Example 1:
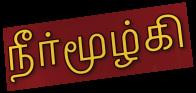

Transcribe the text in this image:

நீர்மூழ்கி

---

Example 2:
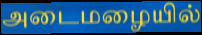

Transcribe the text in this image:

அடைமழையில்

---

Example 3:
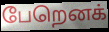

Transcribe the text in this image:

பேறெனக்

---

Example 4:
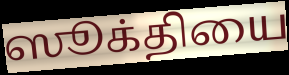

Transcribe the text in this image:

ஸூக்தியை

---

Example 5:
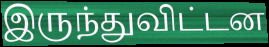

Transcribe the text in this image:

இருந்துவிட்டன